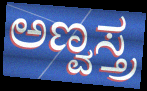
ಅಣ್ವಸ್ತ್ರ